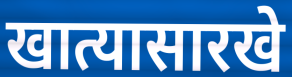
खात्यासारखे